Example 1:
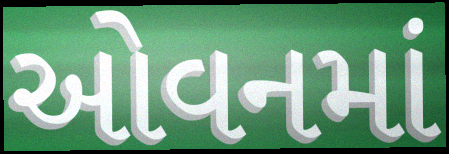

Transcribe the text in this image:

ઓવનમાં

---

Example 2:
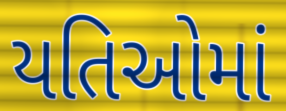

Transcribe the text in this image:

યતિઓમાં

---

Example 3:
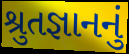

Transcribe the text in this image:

શ્રુતજ્ઞાનનું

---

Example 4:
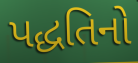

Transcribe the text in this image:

પદ્ધતિનો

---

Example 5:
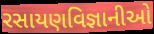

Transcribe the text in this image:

રસાયણવિજ્ઞાનીઓ